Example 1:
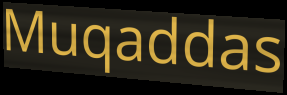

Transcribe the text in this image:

Muqaddas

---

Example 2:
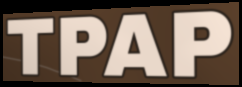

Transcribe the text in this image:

TPAP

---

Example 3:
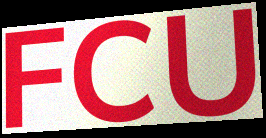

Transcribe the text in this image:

FCU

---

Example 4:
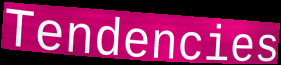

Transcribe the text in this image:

Tendencies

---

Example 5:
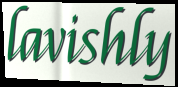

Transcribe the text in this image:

lavishly